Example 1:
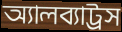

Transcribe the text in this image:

অ্যালব্যাট্রস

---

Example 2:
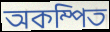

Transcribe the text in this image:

অকম্পিত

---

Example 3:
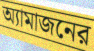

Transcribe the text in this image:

অ্যামাজনের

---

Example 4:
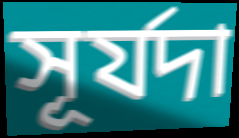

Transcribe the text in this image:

সূর্যদা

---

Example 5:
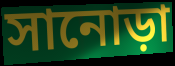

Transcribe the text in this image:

সানোড়া